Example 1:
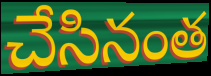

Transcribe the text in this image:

చేసినంత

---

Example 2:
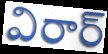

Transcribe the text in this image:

విరార్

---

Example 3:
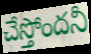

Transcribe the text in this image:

చేస్తోందనీ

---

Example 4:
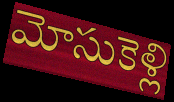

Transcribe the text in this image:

మోసుకెళ్లి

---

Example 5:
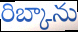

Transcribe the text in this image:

రిబ్కాను